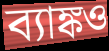
ব্যাঙ্কও